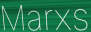
Marxs